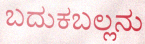
ಬದುಕಬಲ್ಲನು